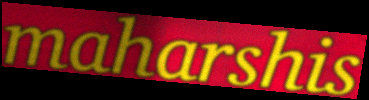
maharshis